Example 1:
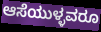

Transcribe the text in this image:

ಆಸೆಯುಳ್ಳವರೂ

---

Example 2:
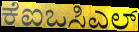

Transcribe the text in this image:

ಕೆಐಒಸಿಎಲ್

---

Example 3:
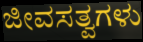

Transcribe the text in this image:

ಜೀವಸತ್ವಗಳು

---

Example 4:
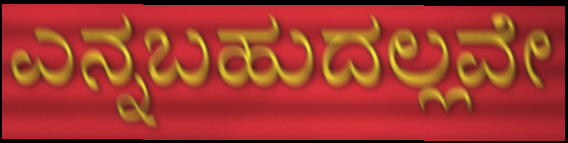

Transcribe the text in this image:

ಎನ್ನಬಹುದಲ್ಲವೇ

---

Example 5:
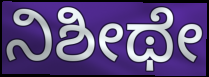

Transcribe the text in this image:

ನಿಶೀಥೇ